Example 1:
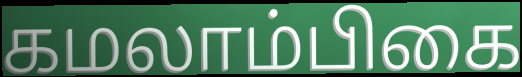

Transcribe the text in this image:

கமலாம்பிகை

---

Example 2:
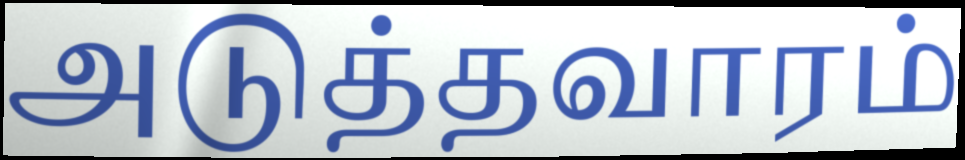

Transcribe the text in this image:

அடுத்தவாரம்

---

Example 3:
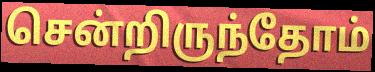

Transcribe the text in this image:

சென்றிருந்தோம்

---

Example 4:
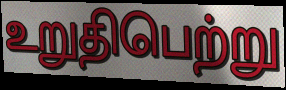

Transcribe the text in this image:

உறுதிபெற்று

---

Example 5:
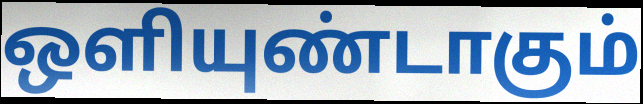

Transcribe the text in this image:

ஒளியுண்டாகும்